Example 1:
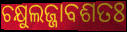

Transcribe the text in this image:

ଚକ୍ଷୁଲଜ୍ଜାବଶତଃ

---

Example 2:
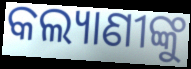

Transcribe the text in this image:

କଲ୍ୟାଣୀଙ୍କୁ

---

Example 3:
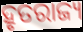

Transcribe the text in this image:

ହୃତରାଜ୍ୟ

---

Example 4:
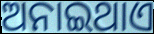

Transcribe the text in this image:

ଅନାଇଥାଏ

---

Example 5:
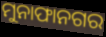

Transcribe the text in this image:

ମୁନାଫାନଗର